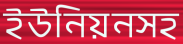
ইউনিয়নসহ